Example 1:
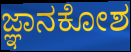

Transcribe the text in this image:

ಜ್ಞಾನಕೋಶ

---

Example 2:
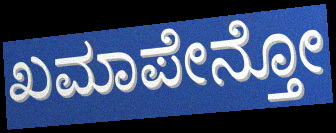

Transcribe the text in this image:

ಖಮಾಪೇನ್ತೋ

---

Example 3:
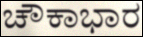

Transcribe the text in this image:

ಚೌಕಾಭಾರ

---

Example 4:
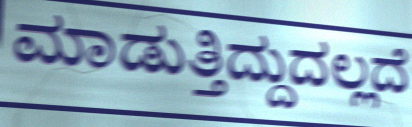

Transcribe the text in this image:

ಮಾಡುತ್ತಿದ್ದುದಲ್ಲದೆ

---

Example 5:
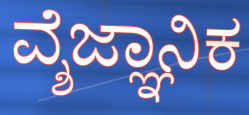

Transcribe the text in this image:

ವ್ಶೆಜ್ಞಾನಿಕ